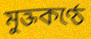
মুক্তকণ্ঠে